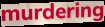
murdering